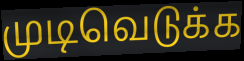
முடிவெடுக்க